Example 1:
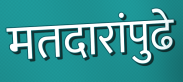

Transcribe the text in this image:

मतदारांपुढे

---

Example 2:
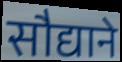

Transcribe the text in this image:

सौद्याने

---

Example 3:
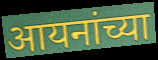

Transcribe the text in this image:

आयनांच्या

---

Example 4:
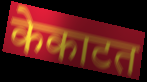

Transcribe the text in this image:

केकाटत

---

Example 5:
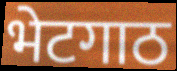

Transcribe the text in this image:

भेटगाठ